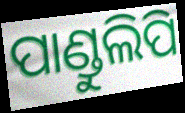
ପାଣ୍ଡୁଲିପି